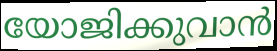
യോജിക്കുവാൻ